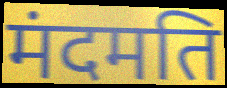
मंदमति